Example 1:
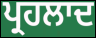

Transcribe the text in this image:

ਪ੍ਰਹਲਾਦ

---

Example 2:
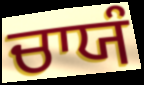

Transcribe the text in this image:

ਚਾਯੰ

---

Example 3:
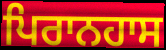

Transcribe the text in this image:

ਪਿਰਾਨਹਾਸ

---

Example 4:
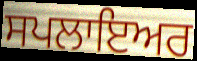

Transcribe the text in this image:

ਸਪਲਾਇਅਰ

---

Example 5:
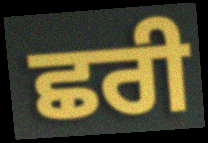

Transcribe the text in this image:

ਛਰੀ